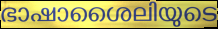
ഭാഷാശൈലിയുടെ